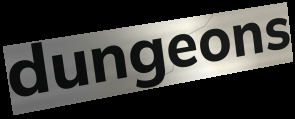
dungeons